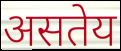
असतेय